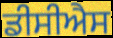
ਡੀਸੀਐਸ